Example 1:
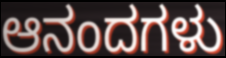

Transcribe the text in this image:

ಆನಂದಗಳು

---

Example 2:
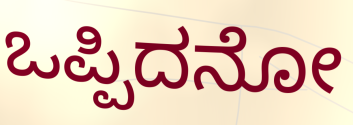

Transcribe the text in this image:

ಒಪ್ಪಿದನೋ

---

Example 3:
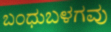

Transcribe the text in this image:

ಬಂಧುಬಳಗವು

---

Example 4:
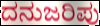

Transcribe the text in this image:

ದನುಜರಿಪು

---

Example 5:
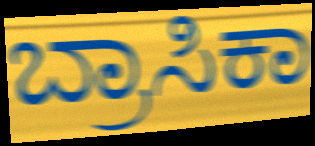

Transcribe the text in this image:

ಬ್ರಾಸಿಕಾ